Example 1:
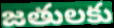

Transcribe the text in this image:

జతులకు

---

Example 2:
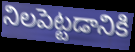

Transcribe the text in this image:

నిలపెట్టడానికి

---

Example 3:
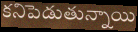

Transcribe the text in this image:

కనిపెడుతున్నాయి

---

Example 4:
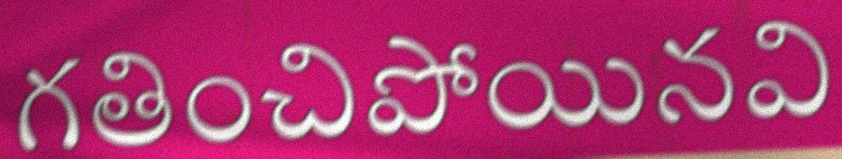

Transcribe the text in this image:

గతించిపోయినవి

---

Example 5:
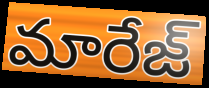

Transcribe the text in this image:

మారేజ్